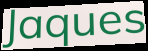
Jaques